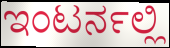
ಇಂಟರ್ನಲ್ಲಿ